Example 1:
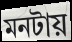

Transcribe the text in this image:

মনটায়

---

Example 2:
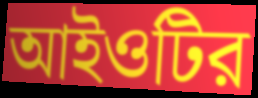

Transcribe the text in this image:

আইওটির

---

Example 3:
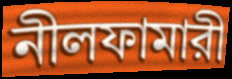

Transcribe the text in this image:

নীলফামারী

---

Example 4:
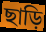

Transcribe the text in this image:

ছাড়ি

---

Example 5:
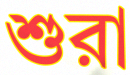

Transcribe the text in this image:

শুরা